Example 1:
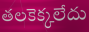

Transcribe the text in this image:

తలకెక్కలేదు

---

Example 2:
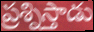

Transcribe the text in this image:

ప్రశ్నిస్తాడు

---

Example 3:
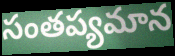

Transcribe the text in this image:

సంతప్యమాన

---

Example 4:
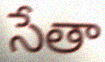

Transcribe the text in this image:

సేతా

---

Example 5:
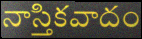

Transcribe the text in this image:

నాస్తికవాదం